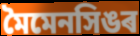
মৈমেনসিঙৰ